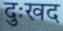
दुःखद